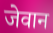
जेवान